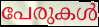
പേരുകൾ